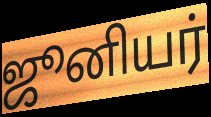
ஜூனியர்